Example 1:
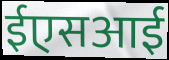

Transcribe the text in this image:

ईएसआई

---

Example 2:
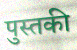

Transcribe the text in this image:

पुस्तकी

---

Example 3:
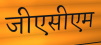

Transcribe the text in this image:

जीएसीएम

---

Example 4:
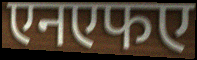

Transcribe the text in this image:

एनएफए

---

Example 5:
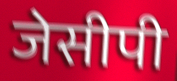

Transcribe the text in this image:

जेसीपी